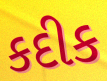
કદીક